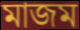
মাজম